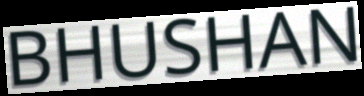
BHUSHAN